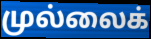
முல்லைக்